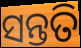
ସନ୍ତତି